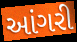
આંગરી